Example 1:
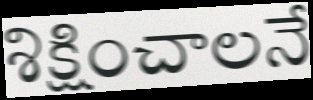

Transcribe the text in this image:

శిక్షించాలనే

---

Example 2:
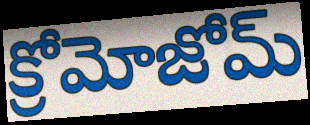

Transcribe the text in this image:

క్రోమోజోమ్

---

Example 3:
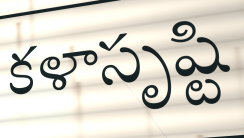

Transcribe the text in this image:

కళాసృష్టి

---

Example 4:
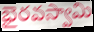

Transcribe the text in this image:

భైరవస్వామి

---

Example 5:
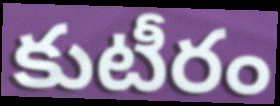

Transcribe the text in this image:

కుటీరం